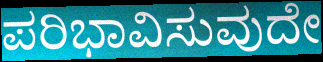
ಪರಿಭಾವಿಸುವುದೇ